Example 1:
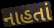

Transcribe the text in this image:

નાહતાં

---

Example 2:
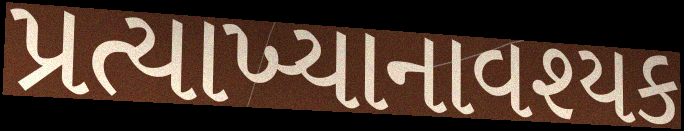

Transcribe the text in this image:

પ્રત્યાખ્યાનાવશ્યક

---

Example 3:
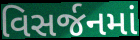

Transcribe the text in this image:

વિસર્જનમાં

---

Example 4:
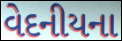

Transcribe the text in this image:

વેદનીયના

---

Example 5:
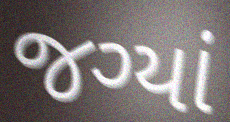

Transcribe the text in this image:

જગ્યાં